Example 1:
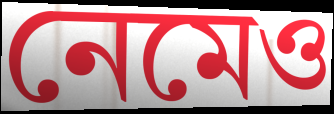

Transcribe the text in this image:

নেমেও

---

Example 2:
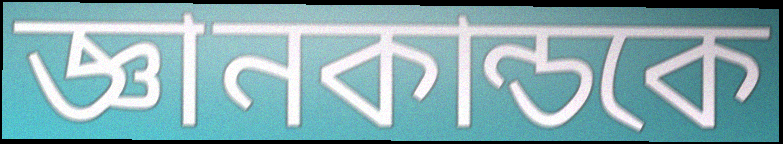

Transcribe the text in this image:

জ্ঞানকান্ডকে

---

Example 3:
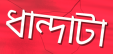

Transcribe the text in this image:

ধান্দাটা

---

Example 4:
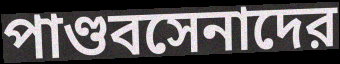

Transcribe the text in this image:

পাণ্ডবসেনাদের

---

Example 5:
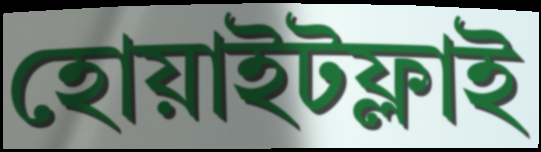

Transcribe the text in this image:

হোয়াইটফ্লাই